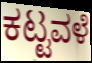
ಕಟ್ಟವಳೆ